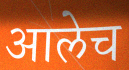
आलेच